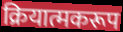
क्रियात्मकरूप